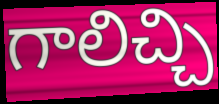
గాలిచ్చి